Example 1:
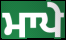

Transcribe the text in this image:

ਮਾਪੇ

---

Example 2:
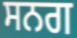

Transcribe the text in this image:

ਸਨਗ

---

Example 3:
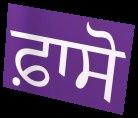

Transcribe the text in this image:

ਫ਼ਾਸੋ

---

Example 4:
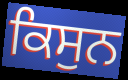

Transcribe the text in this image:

ਕਿਸੁਨ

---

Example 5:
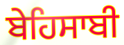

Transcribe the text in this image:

ਬੇਹਿਸਾਬੀ